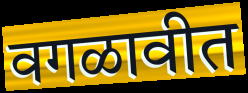
वगळावीत